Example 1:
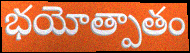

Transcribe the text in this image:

భయోత్పాతం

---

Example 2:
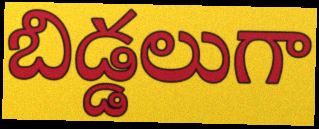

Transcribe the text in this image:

బిడ్డలుగా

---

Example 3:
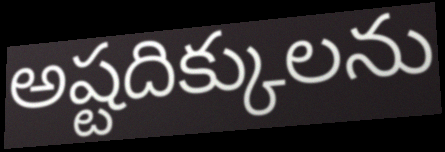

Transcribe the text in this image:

అష్టదిక్కులను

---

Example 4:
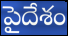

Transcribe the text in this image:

పైదేశం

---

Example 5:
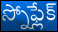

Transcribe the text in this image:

స్నోఫ్లేక్